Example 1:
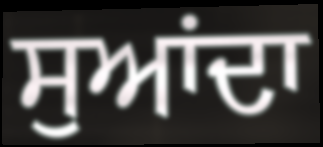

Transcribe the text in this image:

ਸੁਆਂਦਾ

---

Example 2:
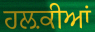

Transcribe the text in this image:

ਹਲ਼ਕੀਆਂ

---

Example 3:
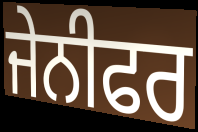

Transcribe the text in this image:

ਜੇਨੀਫਰ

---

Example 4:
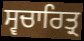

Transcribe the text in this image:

ਸ੍ਵਚਾਰਿਤ੍ਰ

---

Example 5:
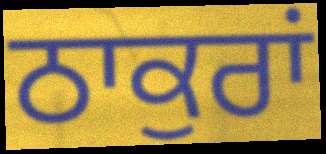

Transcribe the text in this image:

ਠਾਕੁਰਾਂ